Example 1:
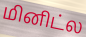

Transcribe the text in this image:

மினிட்ல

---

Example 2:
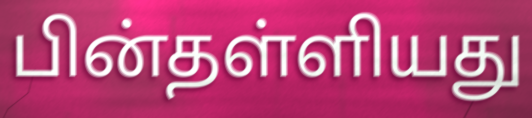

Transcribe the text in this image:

பின்தள்ளியது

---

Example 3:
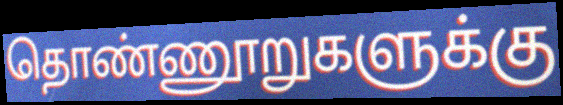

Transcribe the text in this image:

தொண்ணூறுகளுக்கு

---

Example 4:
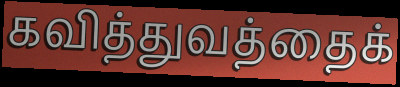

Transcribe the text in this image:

கவித்துவத்தைக்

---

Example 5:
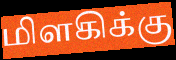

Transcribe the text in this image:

மிளகிக்கு